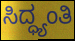
ಸಿದ್ಧ್ಯಂತಿ